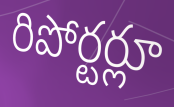
రిపోర్టర్లూ